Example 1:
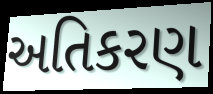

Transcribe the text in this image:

અતિકરણ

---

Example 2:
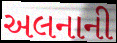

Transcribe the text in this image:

અલનાની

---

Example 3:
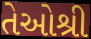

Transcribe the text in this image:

તેઓશ્રી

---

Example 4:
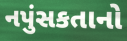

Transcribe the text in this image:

નપુંસકતાનો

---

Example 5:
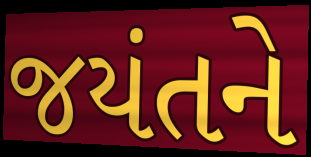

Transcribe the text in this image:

જયંતને